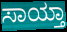
ಸಾಯ್ತಾ